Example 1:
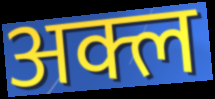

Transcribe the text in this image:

अक्ल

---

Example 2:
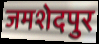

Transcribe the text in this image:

जमशेदपुर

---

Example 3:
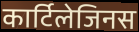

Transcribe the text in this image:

कार्टिलेजिनस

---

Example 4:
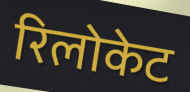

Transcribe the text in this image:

रिलोकेट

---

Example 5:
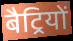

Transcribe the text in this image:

बैट्रियों